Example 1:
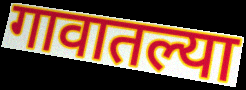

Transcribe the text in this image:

गावातल्या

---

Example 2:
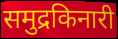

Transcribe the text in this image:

समुद्रकिनारी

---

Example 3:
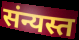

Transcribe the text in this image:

संन्यस्त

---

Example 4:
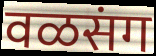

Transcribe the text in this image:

वळसंग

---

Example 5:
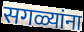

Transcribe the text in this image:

सगळ्यांना